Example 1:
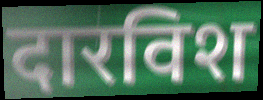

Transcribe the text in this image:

दारविश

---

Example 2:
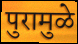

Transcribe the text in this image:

पुरामुळे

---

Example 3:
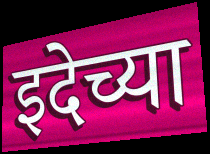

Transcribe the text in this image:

इदेच्या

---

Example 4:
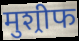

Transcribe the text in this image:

मुश्रीफ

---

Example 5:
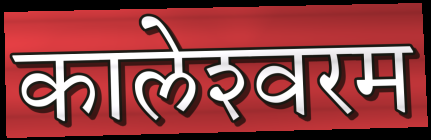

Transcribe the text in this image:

कालेश्वरम